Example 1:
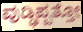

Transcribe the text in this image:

ವುಡ್ಢಿಪ್ಪತ್ತೋ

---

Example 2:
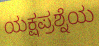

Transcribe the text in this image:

ಯಕ್ಷಪ್ರಶ್ನೆಯ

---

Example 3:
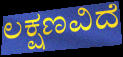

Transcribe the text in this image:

ಲಕ್ಷಣವಿದೆ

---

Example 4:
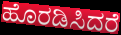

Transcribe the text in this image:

ಹೊರಡಿಸಿದರೆ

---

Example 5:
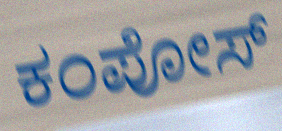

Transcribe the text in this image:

ಕಂಪೋಸ್